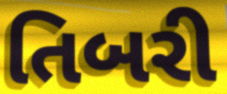
તિબરી